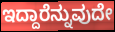
ಇದ್ದಾರೆನ್ನುವುದೇ